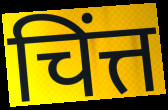
चिंत्त